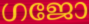
ഗജോ